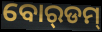
ବୋର୍‌ଡମ୍